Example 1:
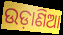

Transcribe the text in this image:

ଉଡ଼ାଣିଆ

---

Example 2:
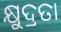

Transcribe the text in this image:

କ୍ଷୁଦ୍ରତା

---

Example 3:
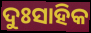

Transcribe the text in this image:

ଦୁଃସାହିକ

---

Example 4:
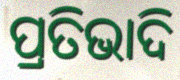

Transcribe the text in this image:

ପ୍ରତିଭାଦି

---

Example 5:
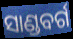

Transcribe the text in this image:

ସାଣ୍ଡବର୍ଗ